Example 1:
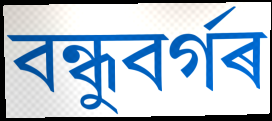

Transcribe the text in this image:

বন্ধুবৰ্গৰ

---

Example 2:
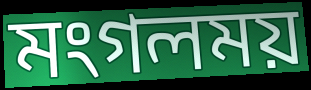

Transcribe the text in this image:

মংগলময়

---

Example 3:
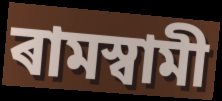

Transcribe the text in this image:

ৰামস্বামী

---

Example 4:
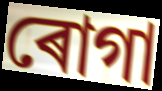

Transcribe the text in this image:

ৰোগা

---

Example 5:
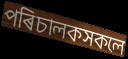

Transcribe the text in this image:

পৰিচালকসকলে